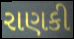
રાણકી